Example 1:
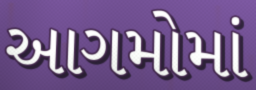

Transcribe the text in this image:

આગમોમાં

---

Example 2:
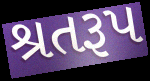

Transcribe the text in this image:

શ્રતરૂપ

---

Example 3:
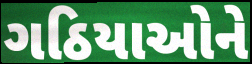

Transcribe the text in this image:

ગઠિયાઓને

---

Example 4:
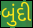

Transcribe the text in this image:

બુંદી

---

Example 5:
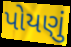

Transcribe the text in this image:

પોયણું